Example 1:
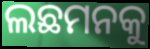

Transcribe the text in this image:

ଲଛମନକୁ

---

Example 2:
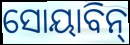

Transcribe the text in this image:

ସୋୟାବିନ୍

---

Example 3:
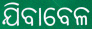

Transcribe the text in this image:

ଯିବାବେଳ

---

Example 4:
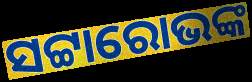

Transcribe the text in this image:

ସଟ୍ଟାରୋଭଙ୍କ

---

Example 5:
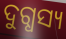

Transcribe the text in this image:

ଦୁଗ୍ଧସ୍ୟ